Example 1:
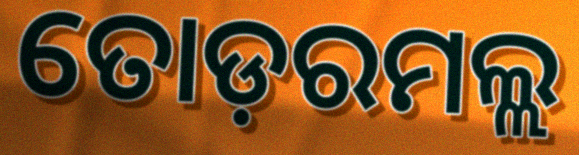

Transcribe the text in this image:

ତୋଡ଼ରମଲ୍ଲ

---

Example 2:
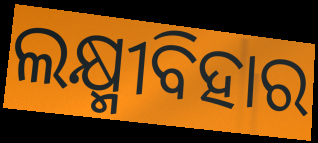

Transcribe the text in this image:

ଲକ୍ଷ୍ମୀବିହାର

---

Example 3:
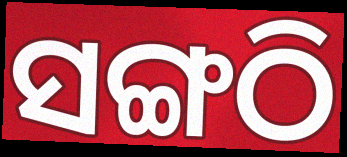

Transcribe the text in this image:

ସଙ୍ଗଠି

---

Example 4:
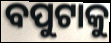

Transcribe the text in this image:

ବପୁଟାକୁ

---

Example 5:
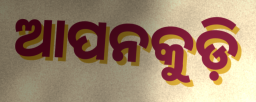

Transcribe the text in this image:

ଆପନକୁଡ଼ି